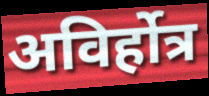
अविर्होत्र